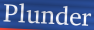
Plunder